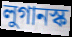
লুগানস্ক